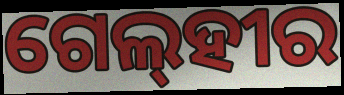
ଗେଲ୍‌ହୀର